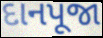
દાનપૂજા